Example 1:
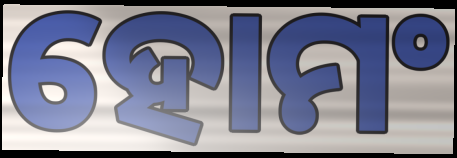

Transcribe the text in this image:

ହୋମଂ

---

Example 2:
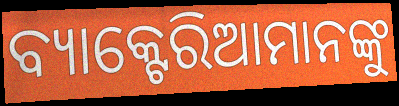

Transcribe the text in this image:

ବ୍ୟାକ୍ଟେରିଆମାନଙ୍କୁ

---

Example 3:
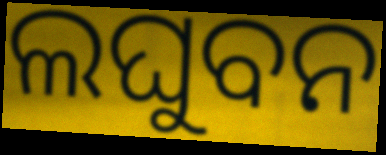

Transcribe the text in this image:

ଲଘୁବନ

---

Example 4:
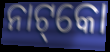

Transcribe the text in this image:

ନାଟ୍‌କୋ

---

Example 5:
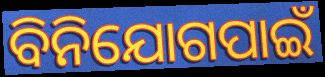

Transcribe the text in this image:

ବିନିଯୋଗପାଇଁ